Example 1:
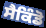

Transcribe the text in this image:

ਸੈਕਿੰਡੋ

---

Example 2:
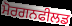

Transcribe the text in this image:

ਮੋਰਗਨਫੀਲਡ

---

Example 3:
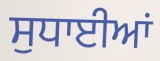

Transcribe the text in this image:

ਸੁਧਾਈਆਂ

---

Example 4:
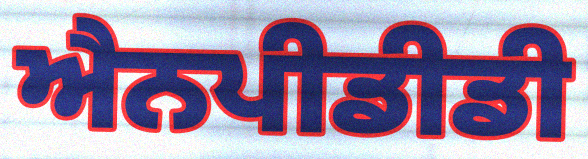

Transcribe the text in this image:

ਐਨਪੀਡੀਡੀ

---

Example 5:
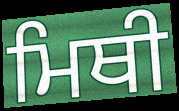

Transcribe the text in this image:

ਮਿਥੀ